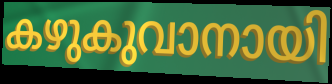
കഴുകുവാനായി